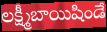
లక్ష్మీబాయిషిండే